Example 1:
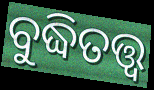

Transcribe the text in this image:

ବୁଦ୍ଧିତତ୍ତ୍ବ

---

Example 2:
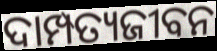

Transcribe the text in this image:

ଦାମ୍ପତ୍ୟଜୀବନ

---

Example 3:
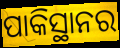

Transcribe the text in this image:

ପାକିସ୍ଥାନର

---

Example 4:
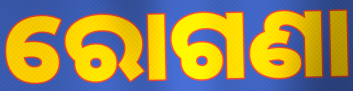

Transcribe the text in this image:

ରୋଗଣା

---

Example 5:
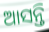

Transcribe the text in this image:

ଆସନ୍ତି